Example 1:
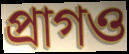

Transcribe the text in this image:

প্রাগও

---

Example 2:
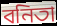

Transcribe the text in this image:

বনিতা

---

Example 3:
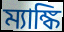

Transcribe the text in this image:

ম্যাঙ্কি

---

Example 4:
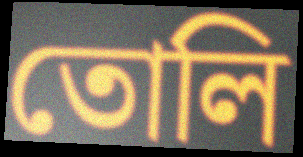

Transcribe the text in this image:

তোলি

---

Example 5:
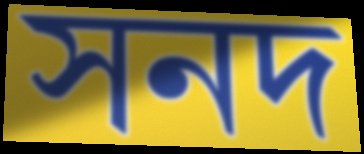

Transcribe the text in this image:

সনদ